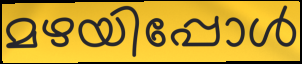
മഴയിപ്പോൾ